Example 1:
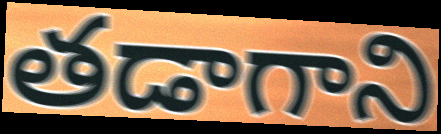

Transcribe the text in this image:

తడాగాని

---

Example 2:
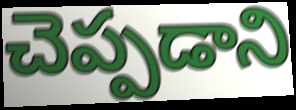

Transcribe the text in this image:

చెప్పడాని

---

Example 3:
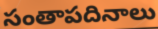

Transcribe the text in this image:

సంతాపదినాలు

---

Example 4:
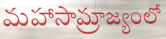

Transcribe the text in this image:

మహాసామ్రాజ్యంలో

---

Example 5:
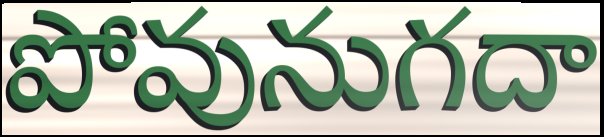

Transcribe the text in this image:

పోవునుగదా